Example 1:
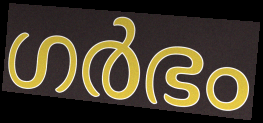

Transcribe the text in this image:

ഗർഭം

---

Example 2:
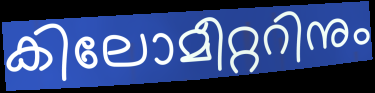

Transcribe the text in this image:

കിലോമീറ്ററിനും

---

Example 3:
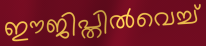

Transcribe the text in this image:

ഈജിപ്തിൽവെച്ച്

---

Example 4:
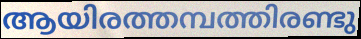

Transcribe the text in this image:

ആയിരത്തമ്പത്തിരണ്ടു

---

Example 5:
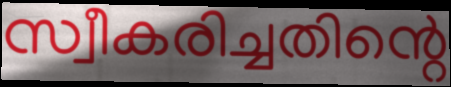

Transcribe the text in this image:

സ്വീകരിച്ചതിന്റെ